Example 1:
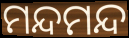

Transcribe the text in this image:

ମନ୍ଦମନ୍ଦ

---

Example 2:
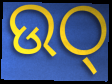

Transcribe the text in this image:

ଉଠ୍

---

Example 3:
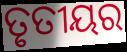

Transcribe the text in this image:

ତୃତୀୟର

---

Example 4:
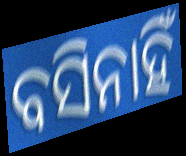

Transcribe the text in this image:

ବସିନାହିଁ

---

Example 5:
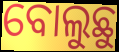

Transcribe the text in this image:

ବୋଲୁଛୁ